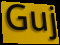
Guj